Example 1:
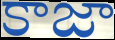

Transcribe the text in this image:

కాజా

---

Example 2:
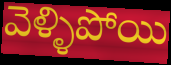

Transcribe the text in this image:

వెళ్ళిపోయి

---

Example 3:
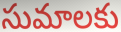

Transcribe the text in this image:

సుమాలకు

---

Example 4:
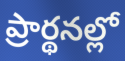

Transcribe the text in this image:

ప్రార్థనల్లో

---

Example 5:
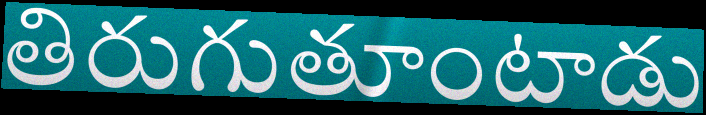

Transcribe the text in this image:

తిరుగుతూంటాడు